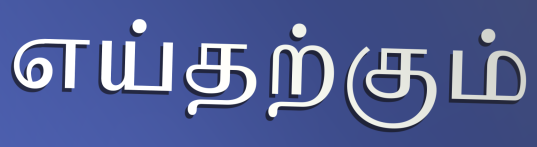
எய்தற்கும்